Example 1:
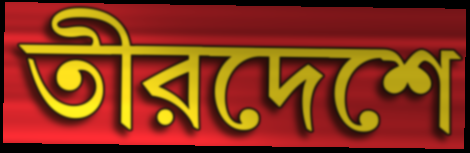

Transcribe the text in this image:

তীরদেশে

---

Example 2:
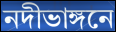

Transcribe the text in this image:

নদীভাঙ্গনে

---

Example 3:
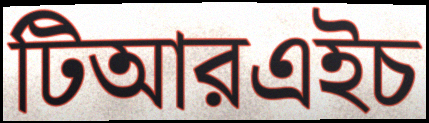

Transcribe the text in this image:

টিআরএইচ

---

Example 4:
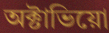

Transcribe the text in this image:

অক্টাভিয়ো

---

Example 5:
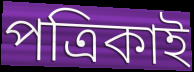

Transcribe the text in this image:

পত্রিকাই